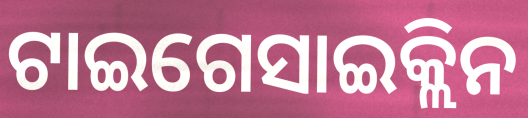
ଟାଇଗେସାଇକ୍ଲିନ